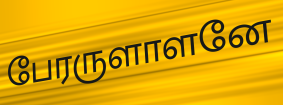
பேரருளாளனே